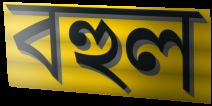
বহুল